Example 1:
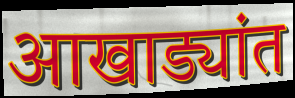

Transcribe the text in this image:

आखाड्यांत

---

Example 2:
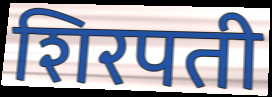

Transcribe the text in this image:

शिरपती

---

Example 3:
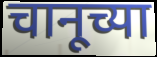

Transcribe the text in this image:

चानूच्या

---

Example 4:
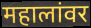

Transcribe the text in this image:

महालांवर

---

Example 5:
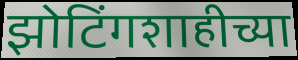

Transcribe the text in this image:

झोटिंगशाहीच्या